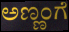
ಅಣ್ಣಂಗೆ